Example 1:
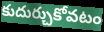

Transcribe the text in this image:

కుదుర్చుకోవటం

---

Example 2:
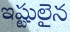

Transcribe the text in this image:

ఇష్టులైన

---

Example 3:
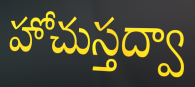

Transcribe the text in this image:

హోచుస్తద్వా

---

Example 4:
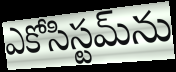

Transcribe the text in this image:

ఎకోసిస్టమ్‌ను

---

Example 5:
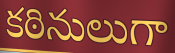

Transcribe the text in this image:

కఠినులుగా